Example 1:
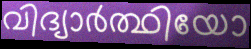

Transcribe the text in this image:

വിദ്യാർത്ഥിയോ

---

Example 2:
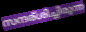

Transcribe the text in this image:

സന്ദര്ശിച്ചിരുന്ന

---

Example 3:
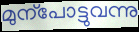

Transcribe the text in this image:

മുന്പോട്ടുവന്നു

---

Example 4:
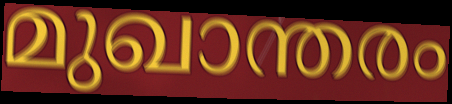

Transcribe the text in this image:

മുഖാന്തരം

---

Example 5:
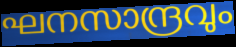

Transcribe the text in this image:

ഘനസാന്ദ്രവും